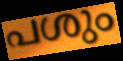
പശും